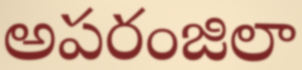
అపరంజిలా